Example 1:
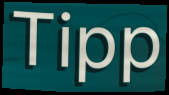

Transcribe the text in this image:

Tipp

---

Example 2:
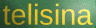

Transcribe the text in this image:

telisina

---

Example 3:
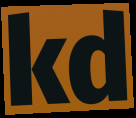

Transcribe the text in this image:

kd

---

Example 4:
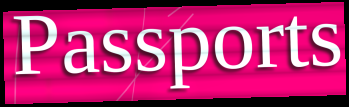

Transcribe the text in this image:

Passports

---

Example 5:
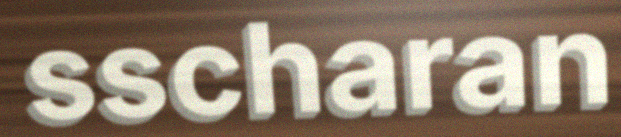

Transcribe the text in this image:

sscharan